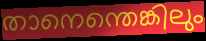
താനെന്തെങ്കിലും